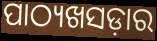
ପାଠ୍ୟଖସଡ଼ାର